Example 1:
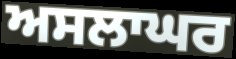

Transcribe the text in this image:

ਅਸਲਾਘਰ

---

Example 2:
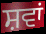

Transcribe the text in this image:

ਸ਼ਵਾਂ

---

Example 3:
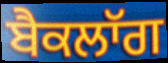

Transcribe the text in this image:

ਬੈਕਲਾੱਗ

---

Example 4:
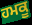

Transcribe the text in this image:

ਹਮਕੂ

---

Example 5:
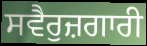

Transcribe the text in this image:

ਸਵੈਰੁਜ਼ਗਾਰੀ